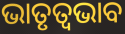
ଭାତୃତ୍ବଭାବ